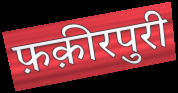
फ़क़ीरपुरी